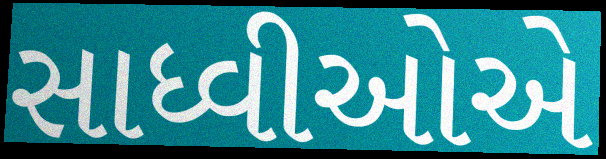
સાધ્વીઓએ